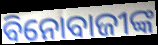
ବିନୋବାଜୀଙ୍କ